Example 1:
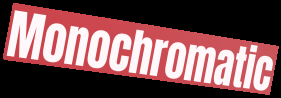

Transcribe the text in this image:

Monochromatic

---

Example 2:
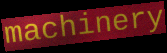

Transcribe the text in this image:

machinery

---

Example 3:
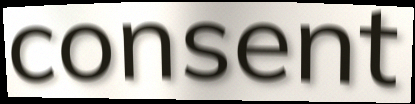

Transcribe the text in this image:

consent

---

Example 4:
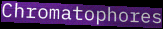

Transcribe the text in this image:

Chromatophores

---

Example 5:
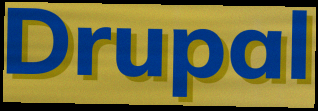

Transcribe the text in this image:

Drupal